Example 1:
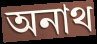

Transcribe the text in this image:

অনাথ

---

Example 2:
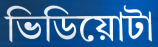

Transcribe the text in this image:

ভিডিয়োটা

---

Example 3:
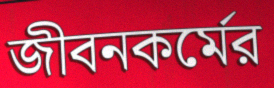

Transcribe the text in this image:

জীবনকর্মের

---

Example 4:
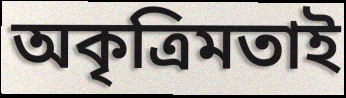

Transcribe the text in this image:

অকৃত্রিমতাই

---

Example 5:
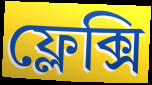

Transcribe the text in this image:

ফ্লেক্সি